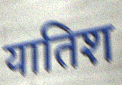
यातिश